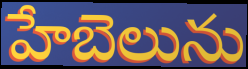
హేబెలును